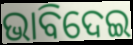
ଭାବିଦେଇ